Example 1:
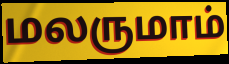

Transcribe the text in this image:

மலருமாம்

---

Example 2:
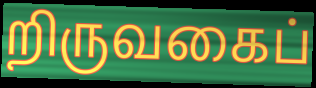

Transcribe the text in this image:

றிருவகைப்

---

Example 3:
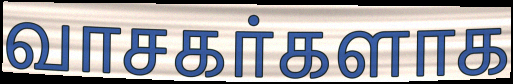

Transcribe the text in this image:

வாசகர்களாக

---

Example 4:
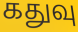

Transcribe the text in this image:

கதுவு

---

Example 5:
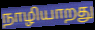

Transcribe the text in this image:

நாழியாறது